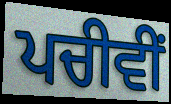
ਪਚੀਵੀਂ